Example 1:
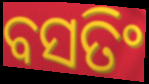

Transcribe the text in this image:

ବସତିଂ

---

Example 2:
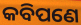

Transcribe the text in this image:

କବିପଣେ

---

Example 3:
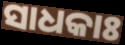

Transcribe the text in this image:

ସାଧକାଃ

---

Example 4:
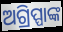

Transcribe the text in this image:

ଅଗ୍ରିପ୍ପାଙ୍କ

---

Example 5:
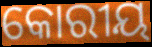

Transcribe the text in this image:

କୋରୀୟ